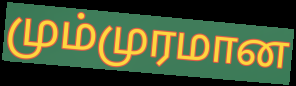
மும்முரமான